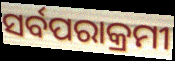
ସର୍ବପରାକ୍ରମୀ